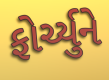
ફોર્ચ્યુને